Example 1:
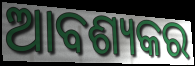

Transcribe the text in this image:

ଆବଶ୍ୟକର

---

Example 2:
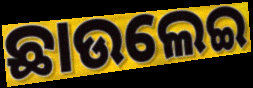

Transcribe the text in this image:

ଛାଉଲେଇ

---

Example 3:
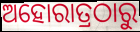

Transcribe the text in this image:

ଅହୋରାତ୍ରଠାରୁ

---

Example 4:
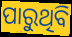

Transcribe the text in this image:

ପାରୁଥିବି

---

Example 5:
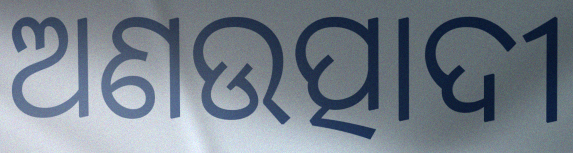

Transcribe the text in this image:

ଅଣଉତ୍ପାଦୀ